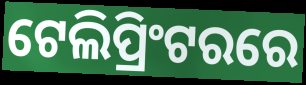
ଟେଲିପ୍ରିଂଟରରେ